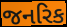
જનરિક